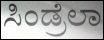
ಸಿಂಡ್ರೆಲಾ